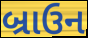
બ્રાઉન